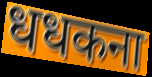
धधकना